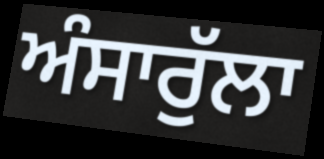
ਅੰਸਾਰੁੱਲਾ